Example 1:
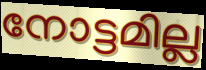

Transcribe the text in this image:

നോട്ടമില്ല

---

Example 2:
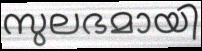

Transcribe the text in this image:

സുലഭമായി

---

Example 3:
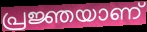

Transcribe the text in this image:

പ്രജ്ഞയാണ്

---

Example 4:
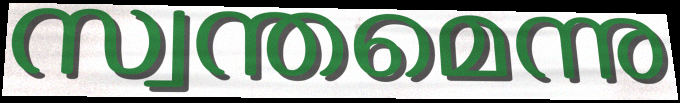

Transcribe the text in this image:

സ്വന്തമെന്നു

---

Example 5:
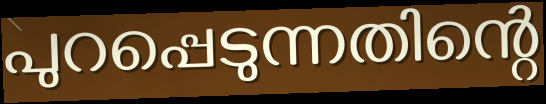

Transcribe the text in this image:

പുറപ്പെടുന്നതിന്റെ